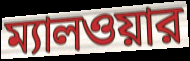
ম্যালওয়ার